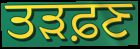
ਤੜਫ਼ਣ